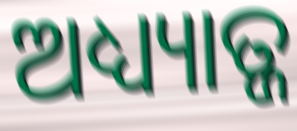
ଅଧ୍ୟ୍ୟାତ୍ଜ